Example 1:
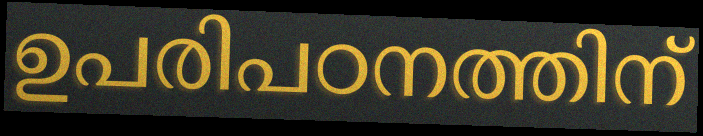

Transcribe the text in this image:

ഉപരിപഠനത്തിന്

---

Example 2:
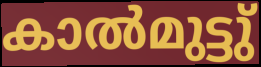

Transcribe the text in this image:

കാൽമുട്ടു്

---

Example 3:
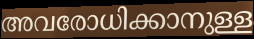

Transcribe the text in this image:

അവരോധിക്കാനുള്ള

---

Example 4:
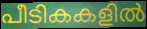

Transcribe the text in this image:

പീടികകളിൽ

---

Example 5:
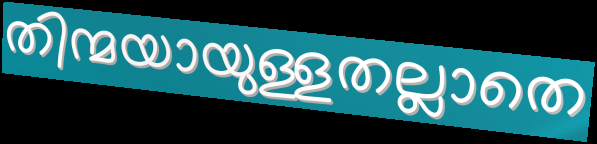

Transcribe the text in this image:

തിന്മയായുള്ളതല്ലാതെ